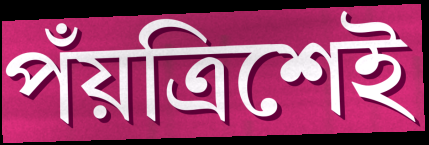
পঁয়ত্রিশেই